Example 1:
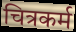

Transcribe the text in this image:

चित्रकर्म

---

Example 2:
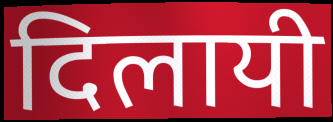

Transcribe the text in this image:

दिलायी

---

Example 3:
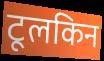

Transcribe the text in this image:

टूलकिन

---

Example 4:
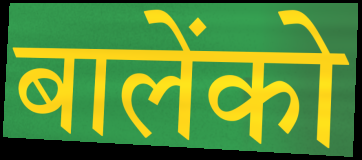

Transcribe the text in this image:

बालेंको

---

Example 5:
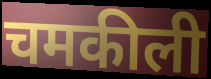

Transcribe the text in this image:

चमकीली